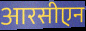
आरसीएन